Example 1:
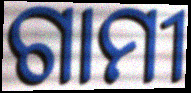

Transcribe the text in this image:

ଗାମୀ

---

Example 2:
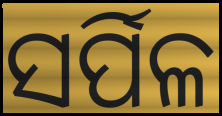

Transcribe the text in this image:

ସର୍ପିଳ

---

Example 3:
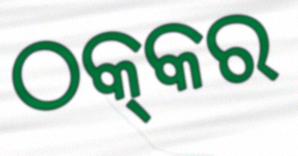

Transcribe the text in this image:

ଠକ୍‍କର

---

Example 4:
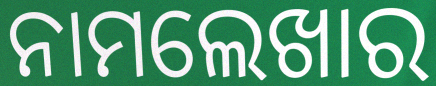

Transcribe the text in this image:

ନାମଲେଖାର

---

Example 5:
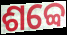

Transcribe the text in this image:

ଶବ୍ବେ